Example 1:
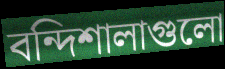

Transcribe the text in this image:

বন্দিশালাগুলো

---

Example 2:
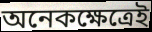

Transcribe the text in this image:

অনেকক্ষেত্রেই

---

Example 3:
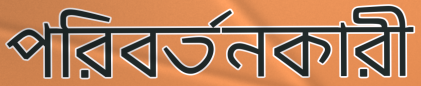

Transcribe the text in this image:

পরিবর্তনকারী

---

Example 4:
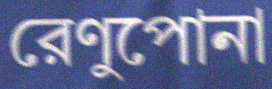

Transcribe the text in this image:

রেণুপোনা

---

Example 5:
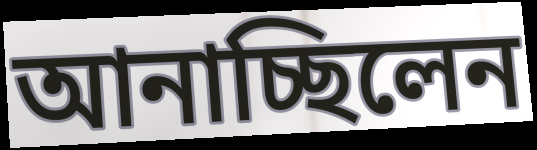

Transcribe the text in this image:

আনাচ্ছিলেন